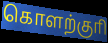
கொளற்குரி